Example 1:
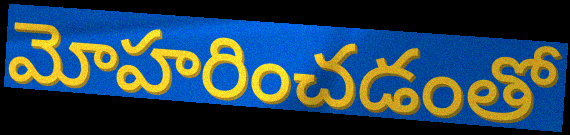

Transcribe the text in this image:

మోహరించడంతో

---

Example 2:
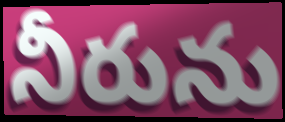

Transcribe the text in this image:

నీరును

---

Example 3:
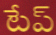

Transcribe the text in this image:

టేప్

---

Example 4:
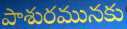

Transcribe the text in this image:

పాశురమునకు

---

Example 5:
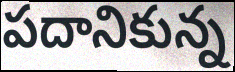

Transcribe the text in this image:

పదానికున్న